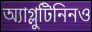
অ্যাগ্লুটিনিনও